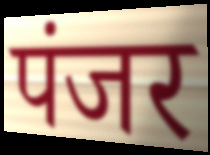
पंजर